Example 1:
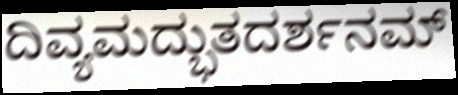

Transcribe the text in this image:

ದಿವ್ಯಮದ್ಭುತದರ್ಶನಮ್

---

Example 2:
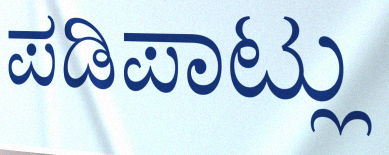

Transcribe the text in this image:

ಪಡಿಪಾಟ್ಲು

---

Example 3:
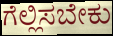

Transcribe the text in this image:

ಗೆಲ್ಲಿಸಬೇಕು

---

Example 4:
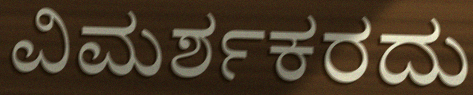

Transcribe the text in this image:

ವಿಮರ್ಶಕರದು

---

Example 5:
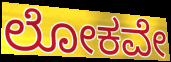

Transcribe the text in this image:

ಲೋಕವೇ